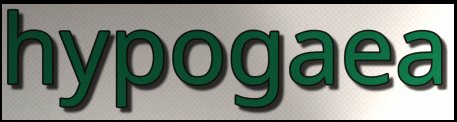
hypogaea